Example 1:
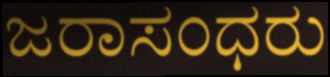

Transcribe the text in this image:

ಜರಾಸಂಧರು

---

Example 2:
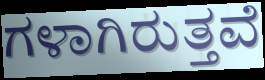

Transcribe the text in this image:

ಗಳಾಗಿರುತ್ತವೆ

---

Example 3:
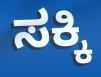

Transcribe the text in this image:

ಸಕ್ಕಿ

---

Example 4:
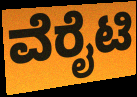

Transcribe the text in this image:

ವೆರೈಟಿ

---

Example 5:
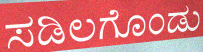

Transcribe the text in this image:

ಸಡಿಲಗೊಂಡು